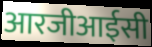
आरजीआईसी